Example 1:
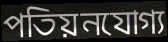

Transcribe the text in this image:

পতিয়নযোগ্য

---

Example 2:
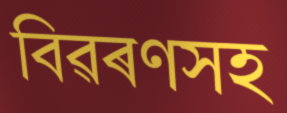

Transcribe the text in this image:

বিৱৰণসহ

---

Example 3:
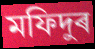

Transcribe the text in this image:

মফিদুৰ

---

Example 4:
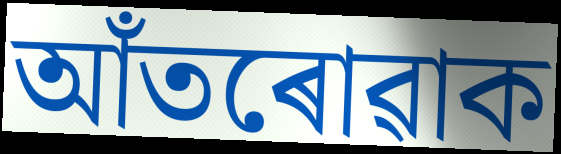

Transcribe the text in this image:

আঁতৰোৱাক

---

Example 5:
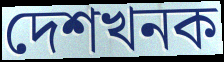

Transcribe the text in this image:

দেশখনক